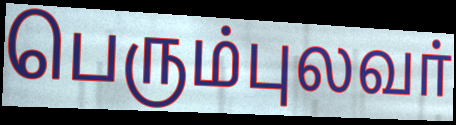
பெரும்புலவர்